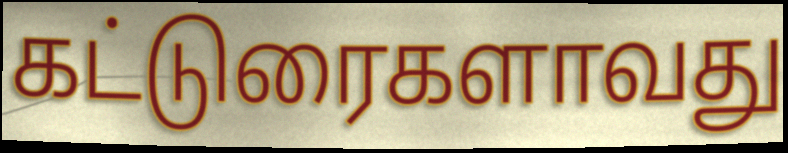
கட்டுரைகளாவது